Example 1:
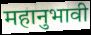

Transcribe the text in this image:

महानुभावी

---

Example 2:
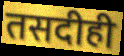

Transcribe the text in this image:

तसदीही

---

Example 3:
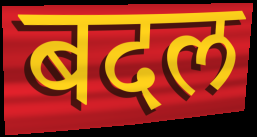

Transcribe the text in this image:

बदल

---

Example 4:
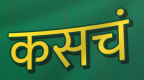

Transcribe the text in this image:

कसचं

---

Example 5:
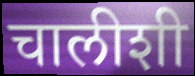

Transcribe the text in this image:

चालीशी